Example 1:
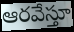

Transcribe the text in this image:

ఆరవేస్తూ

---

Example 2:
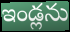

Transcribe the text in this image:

ఇండ్లను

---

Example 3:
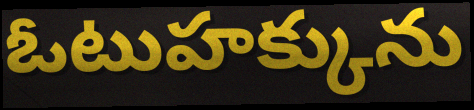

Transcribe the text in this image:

ఓటుహక్కును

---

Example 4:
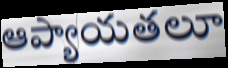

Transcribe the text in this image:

ఆప్యాయతలూ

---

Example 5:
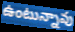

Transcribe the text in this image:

ఉంటున్నావు